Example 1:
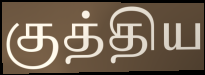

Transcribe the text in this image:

குத்திய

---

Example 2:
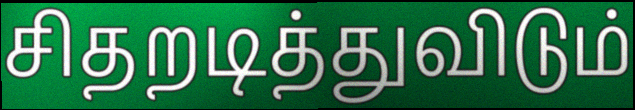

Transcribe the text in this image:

சிதறடித்துவிடும்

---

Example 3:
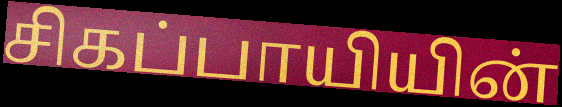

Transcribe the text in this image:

சிகப்பாயியின்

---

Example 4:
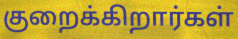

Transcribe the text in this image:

குறைக்கிறார்கள்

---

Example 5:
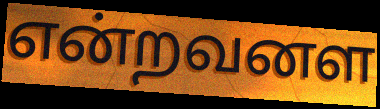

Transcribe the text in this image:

என்றவனள